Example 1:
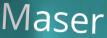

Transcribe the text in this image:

Maser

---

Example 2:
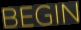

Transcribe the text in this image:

BEGIN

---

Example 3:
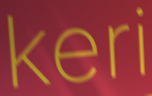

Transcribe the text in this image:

keri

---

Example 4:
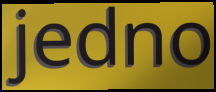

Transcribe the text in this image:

jedno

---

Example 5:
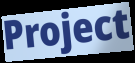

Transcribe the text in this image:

Project